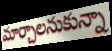
మార్చాలనుకున్నా